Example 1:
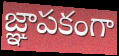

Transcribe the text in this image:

జ్ఞాపకంగా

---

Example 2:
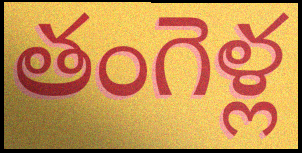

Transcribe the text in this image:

తంగెళ్ల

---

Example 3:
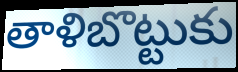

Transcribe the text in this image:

తాళిబొట్టుకు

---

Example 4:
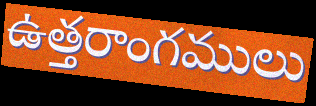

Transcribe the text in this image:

ఉత్తరాంగములు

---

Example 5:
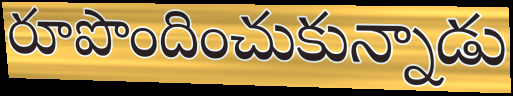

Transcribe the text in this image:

రూపొందించుకున్నాడు